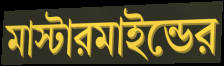
মাস্টারমাইন্ডের